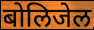
बोलिजेल